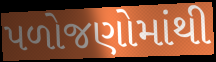
પળોજણોમાંથી